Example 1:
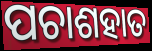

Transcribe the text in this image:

ପଚାଶହାତ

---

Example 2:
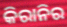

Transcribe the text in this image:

କିରାନିର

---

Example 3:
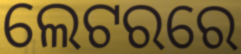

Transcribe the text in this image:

ଲେଟରରେ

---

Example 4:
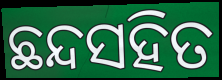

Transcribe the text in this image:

ଛନ୍ଦସହିତ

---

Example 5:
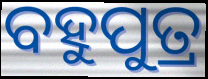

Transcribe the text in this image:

ବହୁପୁତ୍ର